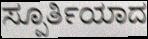
ಸ್ಪೂರ್ತಿಯಾದ